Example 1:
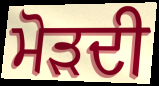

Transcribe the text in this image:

ਮੋੜਦੀ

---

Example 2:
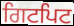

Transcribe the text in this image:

ਗਿਟਪਿਟ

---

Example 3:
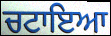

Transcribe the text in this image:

ਚਟਾਇਆ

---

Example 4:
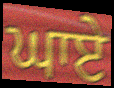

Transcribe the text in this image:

ਘਾਏ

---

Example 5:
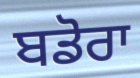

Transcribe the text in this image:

ਬਡੋਰਾ